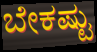
ಬೇಕಷ್ಟು